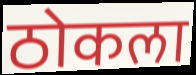
ठोकला